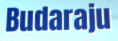
Budaraju